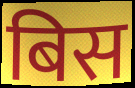
बिस